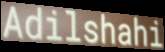
Adilshahi